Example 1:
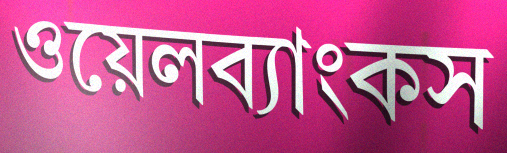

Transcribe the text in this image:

ওয়েলব্যাংকস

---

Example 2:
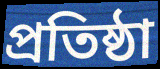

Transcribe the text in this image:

প্রতিষ্ঠা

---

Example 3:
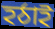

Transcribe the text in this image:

হঠাই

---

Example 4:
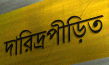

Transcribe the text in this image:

দারিদ্রপীড়িত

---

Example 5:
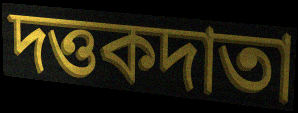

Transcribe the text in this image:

দত্তকদাতা